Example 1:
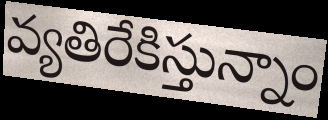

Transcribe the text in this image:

వ్యతిరేకిస్తున్నాం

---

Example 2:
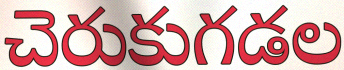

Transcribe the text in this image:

చెరుకుగడల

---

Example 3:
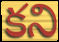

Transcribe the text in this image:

కని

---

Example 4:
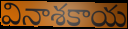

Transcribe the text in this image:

వినాశకాయ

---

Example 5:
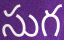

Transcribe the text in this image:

సుగ